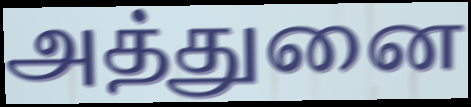
அத்துனை